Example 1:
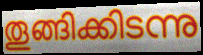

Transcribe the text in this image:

തൂങ്ങിക്കിടന്നു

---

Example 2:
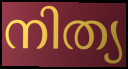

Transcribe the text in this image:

നിത്യ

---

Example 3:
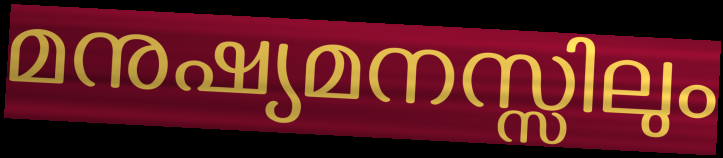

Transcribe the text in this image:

മനുഷ്യമനസ്സിലും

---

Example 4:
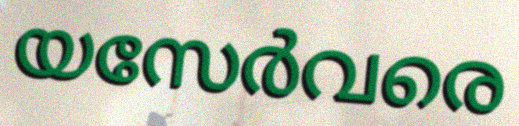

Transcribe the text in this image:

യസേർവരെ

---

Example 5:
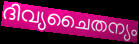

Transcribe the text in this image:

ദിവ്യചൈതന്യം